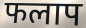
फलाप